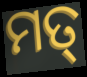
ମତ୍